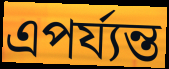
এপর্য্যন্ত